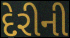
દેરીની